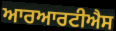
ਆਰਆਰਟੀਐਸ